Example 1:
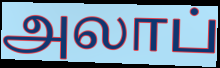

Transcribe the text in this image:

அலாப்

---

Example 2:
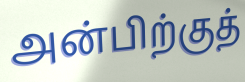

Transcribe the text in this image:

அன்பிற்குத்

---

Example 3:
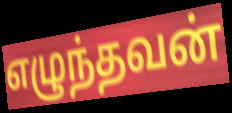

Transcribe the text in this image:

எழுந்தவன்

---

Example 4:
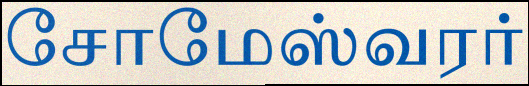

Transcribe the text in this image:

சோமேஸ்வரர்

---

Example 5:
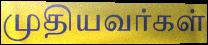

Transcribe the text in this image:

முதியவர்கள்